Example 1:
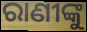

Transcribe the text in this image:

ରାଣୀଙ୍କୁ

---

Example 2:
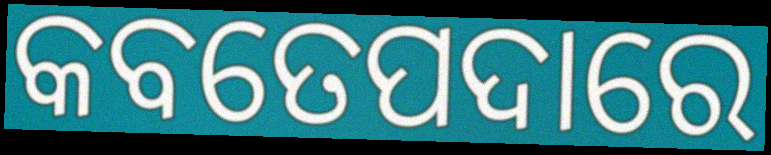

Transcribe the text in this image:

କବତେପଦାରେ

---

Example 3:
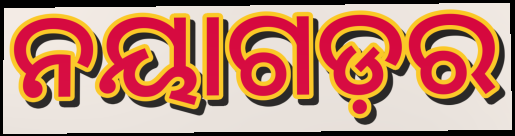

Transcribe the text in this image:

ନୟାଗଡ଼ର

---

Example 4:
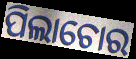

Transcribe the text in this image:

ପିଲାଚୋର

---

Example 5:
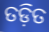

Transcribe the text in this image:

ତଡ଼ିତ